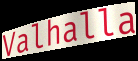
Valhalla